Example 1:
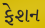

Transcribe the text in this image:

ફેશન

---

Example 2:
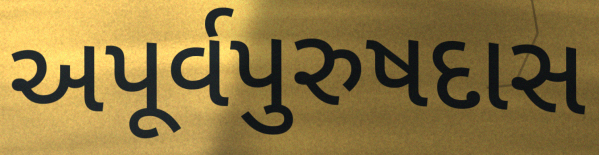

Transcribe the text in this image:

અપૂર્વપુરુષદાસ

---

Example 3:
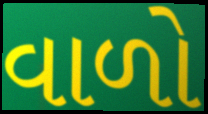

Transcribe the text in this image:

વાળો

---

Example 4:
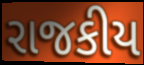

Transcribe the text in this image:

રાજકીય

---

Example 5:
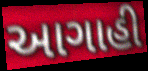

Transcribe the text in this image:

આગાહી